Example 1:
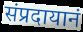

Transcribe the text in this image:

संप्रदायानं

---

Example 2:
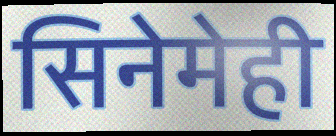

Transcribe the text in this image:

सिनेमेही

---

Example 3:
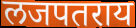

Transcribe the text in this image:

लजपतराय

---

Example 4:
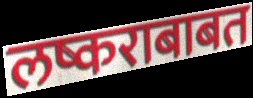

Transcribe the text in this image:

लष्कराबाबत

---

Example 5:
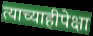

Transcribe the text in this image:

त्याच्याहीपेक्षा